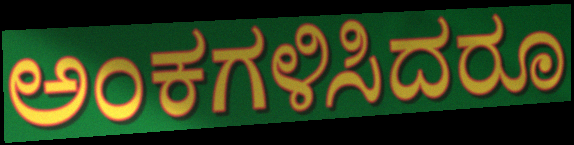
ಅಂಕಗಳಿಸಿದರೂ